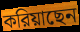
করিয়াছেন